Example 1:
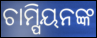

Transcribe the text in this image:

ଚାମ୍ପିୟନଙ୍କ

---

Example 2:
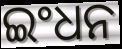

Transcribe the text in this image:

ଇଂଧନ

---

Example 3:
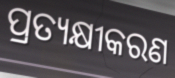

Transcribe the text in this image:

ପ୍ରତ୍ୟକ୍ଷୀକରଣ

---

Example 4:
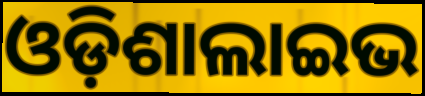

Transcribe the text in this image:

ଓଡ଼ିଶାଲାଇଭ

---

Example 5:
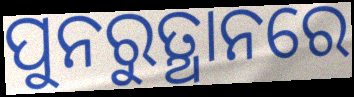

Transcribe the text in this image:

ପୁନରୁତ୍ଥାନରେ